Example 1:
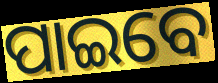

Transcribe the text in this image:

ପାଇବେ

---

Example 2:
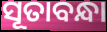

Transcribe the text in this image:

ସୂତାବନ୍ଧା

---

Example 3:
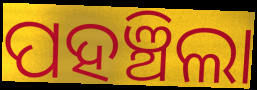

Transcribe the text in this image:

ପହଞ୍ଚିଲା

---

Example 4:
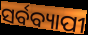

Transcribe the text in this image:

ସର୍ବବ୍ୟାପୀ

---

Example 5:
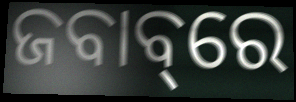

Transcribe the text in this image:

ଜବାବ୍‌ରେ